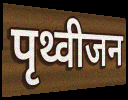
पृथ्वीजन